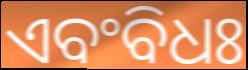
ଏବଂବିଧଃ